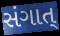
સંગાત્